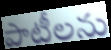
పాటీలను